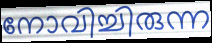
നോവിച്ചിരുന്ന